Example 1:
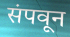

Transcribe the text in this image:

संपवून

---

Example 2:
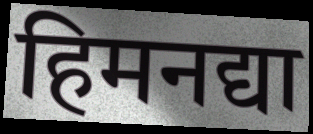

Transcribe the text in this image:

हिमनद्या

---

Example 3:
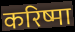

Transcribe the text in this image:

करिष्मा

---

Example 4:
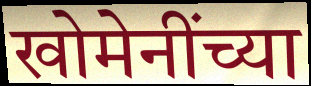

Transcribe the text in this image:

खोमेनींच्या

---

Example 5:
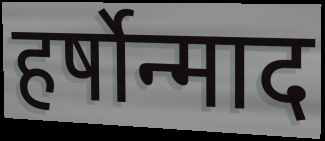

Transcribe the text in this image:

हर्षोन्माद